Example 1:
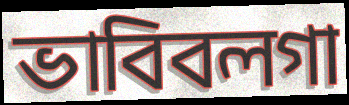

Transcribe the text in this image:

ভাবিবলগা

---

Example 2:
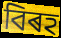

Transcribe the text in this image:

বিৰহ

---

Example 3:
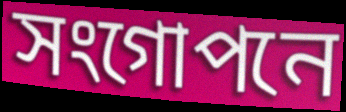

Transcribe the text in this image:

সংগোপনে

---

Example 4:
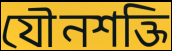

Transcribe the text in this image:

যৌনশক্তি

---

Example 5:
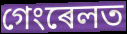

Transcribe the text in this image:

গেংৰেলত